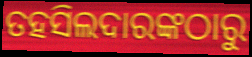
ତହସିଲଦାରଙ୍କଠାରୁ